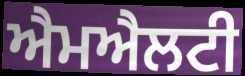
ਐਮਐਲਟੀ